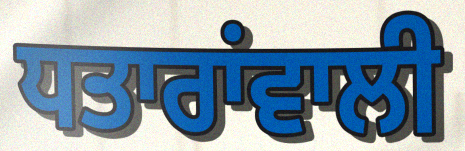
ਧਤਾਰਾਂਵਾਲੀ